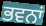
ਭਵਨਾਂ